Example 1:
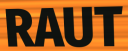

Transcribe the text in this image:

RAUT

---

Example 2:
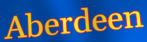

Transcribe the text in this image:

Aberdeen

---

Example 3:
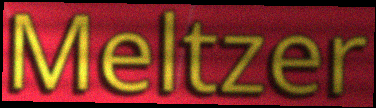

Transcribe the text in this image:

Meltzer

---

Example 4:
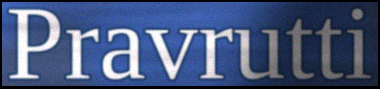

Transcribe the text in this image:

Pravrutti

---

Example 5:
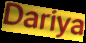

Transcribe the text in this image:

Dariya